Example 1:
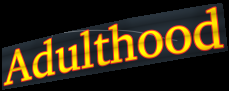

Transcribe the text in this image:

Adulthood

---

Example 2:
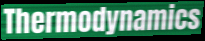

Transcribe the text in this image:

Thermodynamics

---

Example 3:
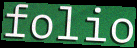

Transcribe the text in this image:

folio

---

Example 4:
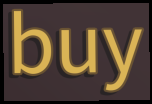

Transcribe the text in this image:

buy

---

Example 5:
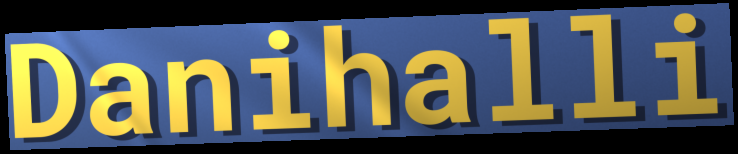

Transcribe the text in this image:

Danihalli